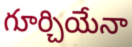
గూర్చియేనా